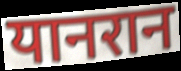
यानरान